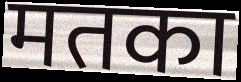
मतका